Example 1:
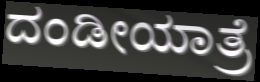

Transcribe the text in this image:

ದಂಡೀಯಾತ್ರೆ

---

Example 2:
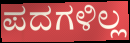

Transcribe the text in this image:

ಪದಗಳಿಲ್ಲ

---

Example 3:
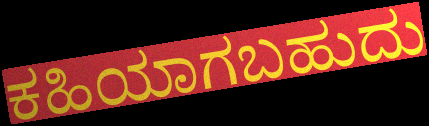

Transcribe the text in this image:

ಕಹಿಯಾಗಬಹುದು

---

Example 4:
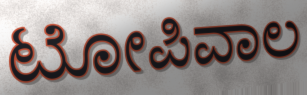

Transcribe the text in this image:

ಟೋಪಿವಾಲ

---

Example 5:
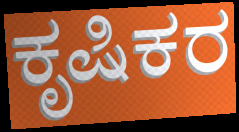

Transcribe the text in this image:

ಕೃಷಿಕರ